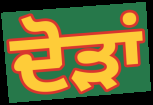
ਦੋੜਾਂ